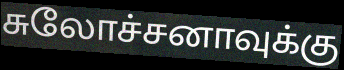
சுலோச்சனாவுக்கு